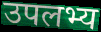
उपलभ्य